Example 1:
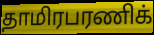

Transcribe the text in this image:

தாமிரபரணிக்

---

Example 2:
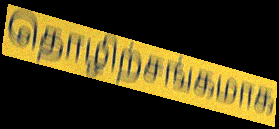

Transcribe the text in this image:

தொழிற்சங்கமாக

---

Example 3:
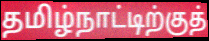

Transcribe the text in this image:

தமிழ்நாட்டிற்குத்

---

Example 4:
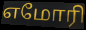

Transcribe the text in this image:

எமோரி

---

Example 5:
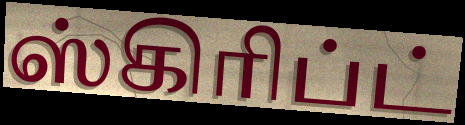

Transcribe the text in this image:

ஸ்கிரிப்ட்